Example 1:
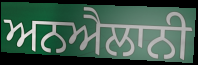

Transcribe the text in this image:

ਅਨਐਲਾਨੀ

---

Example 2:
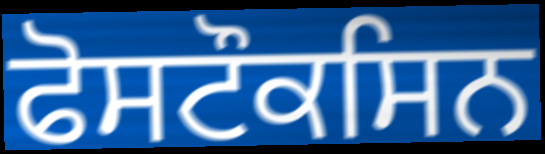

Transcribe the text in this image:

ਫੋਸਟੌਕਸਿਨ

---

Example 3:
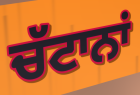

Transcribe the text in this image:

ਚੱਟਾਨਾਂ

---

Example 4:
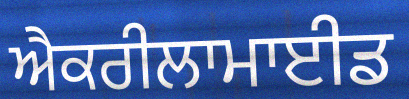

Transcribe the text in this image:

ਐਕਰੀਲਾਮਾਈਡ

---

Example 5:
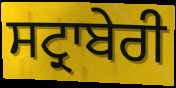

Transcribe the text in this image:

ਸਟ੍ਰਾਬੇਰੀ